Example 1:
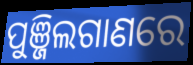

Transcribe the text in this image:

ପୁଞ୍ଜିଲଗାଣରେ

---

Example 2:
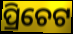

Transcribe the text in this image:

ପ୍ରିଚେଟ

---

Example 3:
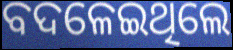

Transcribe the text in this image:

ବଦଳେଇଥିଲେ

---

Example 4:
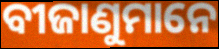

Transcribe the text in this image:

ବୀଜାଣୁମାନେ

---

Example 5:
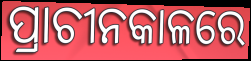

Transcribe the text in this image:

ପ୍ରାଚୀନକାଳରେ